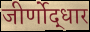
जीर्णोद्धार